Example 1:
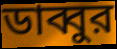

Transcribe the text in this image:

ডাব্বুর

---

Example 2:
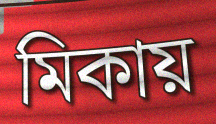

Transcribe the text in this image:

মিকায়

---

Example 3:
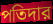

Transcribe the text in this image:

পতিদার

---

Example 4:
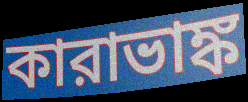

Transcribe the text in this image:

কারাভাঙ্ক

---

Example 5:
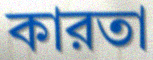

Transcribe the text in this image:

কারতা